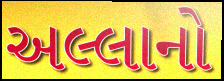
અલ્લાનો